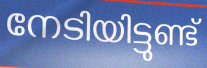
നേടിയിട്ടുണ്ട്